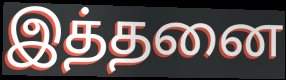
இத்தனை